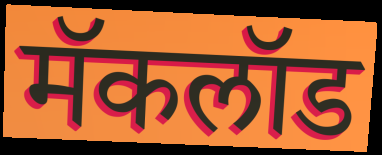
मॅकलॉड